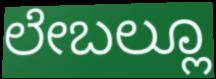
ಲೇಬಲ್ಲೂ